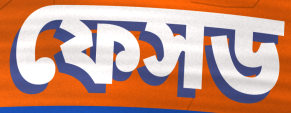
ফেসড